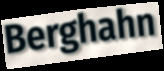
Berghahn